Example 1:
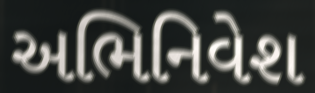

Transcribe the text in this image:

અભિનિવેશ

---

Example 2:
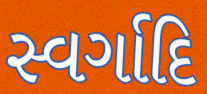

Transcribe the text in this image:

સ્વર્ગાદિ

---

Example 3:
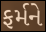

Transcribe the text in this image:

ફર્મને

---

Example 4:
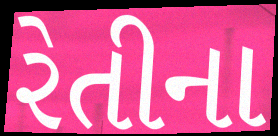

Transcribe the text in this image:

રેતીના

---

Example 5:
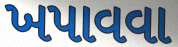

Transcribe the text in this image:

ખપાવવા